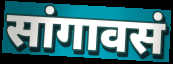
सांगावसं